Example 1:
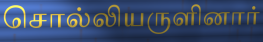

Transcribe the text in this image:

சொல்லியருளினார்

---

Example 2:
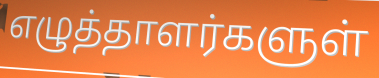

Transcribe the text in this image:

எழுத்தாளர்களுள்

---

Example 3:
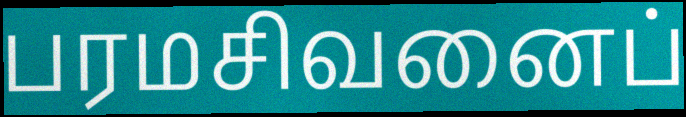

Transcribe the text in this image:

பரமசிவனைப்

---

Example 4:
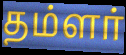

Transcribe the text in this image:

தம்ளர்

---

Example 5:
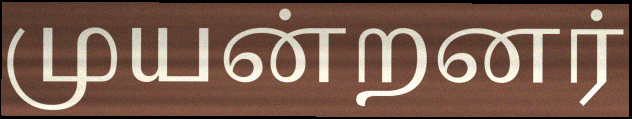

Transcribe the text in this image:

முயன்றனர்